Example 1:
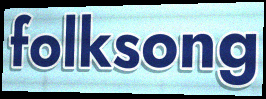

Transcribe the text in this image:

folksong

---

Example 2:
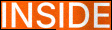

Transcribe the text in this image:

INSIDE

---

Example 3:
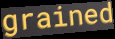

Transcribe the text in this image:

grained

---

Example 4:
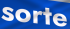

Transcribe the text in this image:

sorte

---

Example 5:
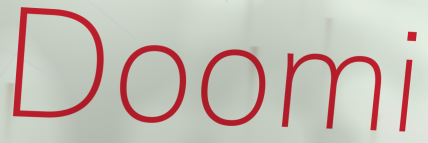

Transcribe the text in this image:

Doomi